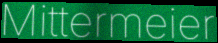
Mittermeier